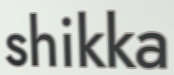
shikka